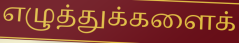
எழுத்துக்களைக்